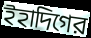
ইহাদিগের